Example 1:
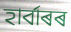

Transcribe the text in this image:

হাৰ্বাৰৰ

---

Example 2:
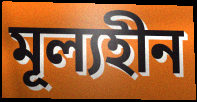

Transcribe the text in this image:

মূল্যহীন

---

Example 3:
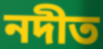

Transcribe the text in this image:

নদীত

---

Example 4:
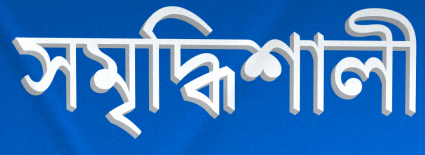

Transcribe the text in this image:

সমৃদ্ধিশালী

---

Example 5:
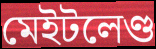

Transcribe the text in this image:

মেইটলেণ্ড